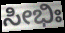
ಸೀಭಿಃ